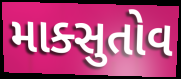
માક્સુતોવ